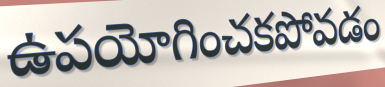
ఉపయోగించకపోవడం